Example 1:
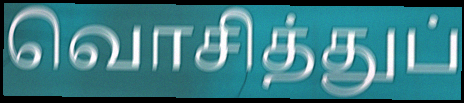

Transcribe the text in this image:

வொசித்துப்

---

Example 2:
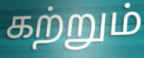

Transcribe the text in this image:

கற்றும்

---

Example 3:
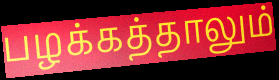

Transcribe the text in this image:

பழக்கத்தாலும்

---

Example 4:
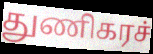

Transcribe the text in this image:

துணிகரச்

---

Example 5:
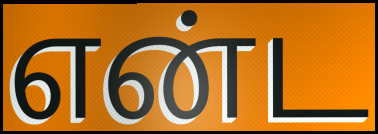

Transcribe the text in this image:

என்ட